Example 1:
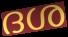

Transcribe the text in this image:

ദശ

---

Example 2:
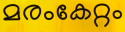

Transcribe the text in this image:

മരംകേറ്റം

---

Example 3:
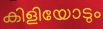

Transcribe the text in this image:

കിളിയോടും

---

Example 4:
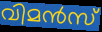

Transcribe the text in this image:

വിമൻസ്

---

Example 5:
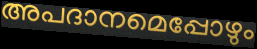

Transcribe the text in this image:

അപദാനമെപ്പോഴും